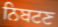
ਨਿਬਟਣ